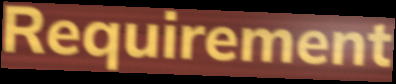
Requirement